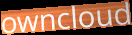
owncloud